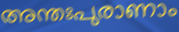
അന്തഃപുരാണാം